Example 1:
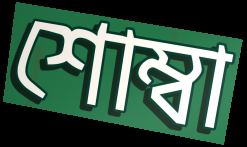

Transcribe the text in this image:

শোম্বা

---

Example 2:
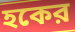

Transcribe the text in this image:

হকের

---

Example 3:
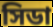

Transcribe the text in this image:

সিডা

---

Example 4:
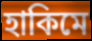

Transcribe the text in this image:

হাকিমে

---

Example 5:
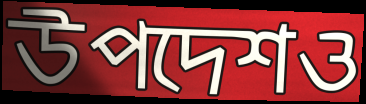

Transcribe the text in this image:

উপদেশও